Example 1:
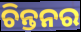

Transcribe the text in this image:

ଚିନ୍ତନର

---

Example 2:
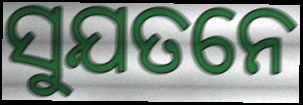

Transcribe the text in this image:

ସୁଯତନେ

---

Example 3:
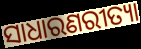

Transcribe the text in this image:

ସାଧାରଣରୀତ୍ୟା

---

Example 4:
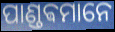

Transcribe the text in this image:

ପାଣ୍ଡଵମାନେ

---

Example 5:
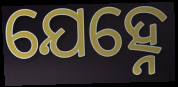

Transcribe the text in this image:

ଯେହ୍ନେ